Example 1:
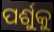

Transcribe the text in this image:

ପର୍ଶୁକୁ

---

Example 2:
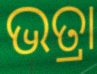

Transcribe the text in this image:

ଭତ୍ରା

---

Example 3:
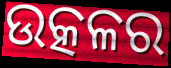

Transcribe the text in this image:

ଉତ୍କଳର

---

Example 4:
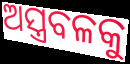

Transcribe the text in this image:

ଅସ୍ତ୍ରବଳକୁ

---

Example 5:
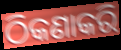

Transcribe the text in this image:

ଠିକଣାକରି